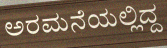
ಅರಮನೆಯಲ್ಲಿದ್ದ